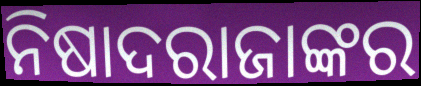
ନିଷାଦରାଜାଙ୍କର